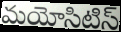
మయోసిటిస్